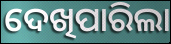
ଦେଖିପାରିଲା